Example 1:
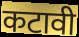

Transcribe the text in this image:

कटावी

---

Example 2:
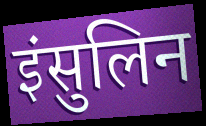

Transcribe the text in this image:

इंसुलिन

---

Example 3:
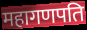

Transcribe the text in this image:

महागणपति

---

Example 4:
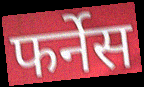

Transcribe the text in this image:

फर्नेस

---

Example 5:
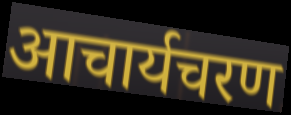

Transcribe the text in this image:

आचार्यचरण